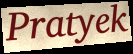
Pratyek